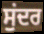
ਸੁਂਦਰ